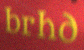
brhd